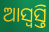
ଆସ୍ୱସ୍ତି